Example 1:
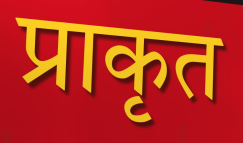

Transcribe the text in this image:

प्राकृत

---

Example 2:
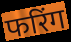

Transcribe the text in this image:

फरिंग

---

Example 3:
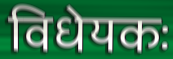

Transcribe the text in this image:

विधेयकः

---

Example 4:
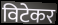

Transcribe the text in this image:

विटेकर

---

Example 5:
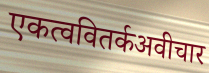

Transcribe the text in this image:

एकत्ववितर्कअवीचार